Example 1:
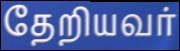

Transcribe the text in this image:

தேறியவர்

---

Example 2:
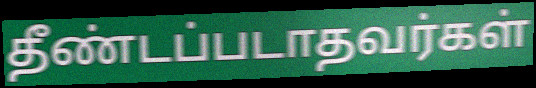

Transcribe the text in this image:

தீண்டப்படாதவர்கள்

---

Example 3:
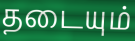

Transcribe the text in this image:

தடையும்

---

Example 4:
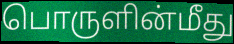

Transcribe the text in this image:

பொருளின்மீது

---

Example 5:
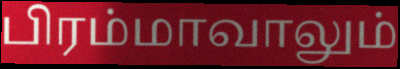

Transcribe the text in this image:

பிரம்மாவாலும்